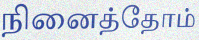
நினைத்தோம்